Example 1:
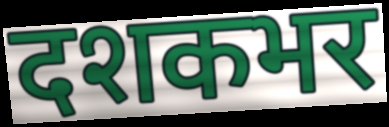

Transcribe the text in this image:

दशकभर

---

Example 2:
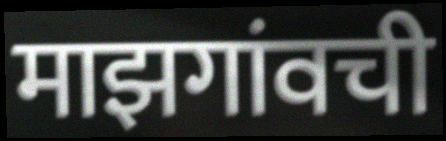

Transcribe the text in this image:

माझगांवची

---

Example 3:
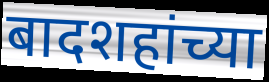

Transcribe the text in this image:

बादशहांच्या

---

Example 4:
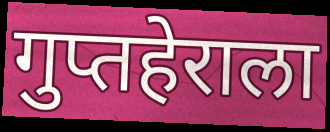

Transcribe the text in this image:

गुप्तहेराला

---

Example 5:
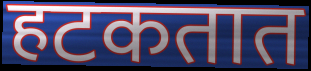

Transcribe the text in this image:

हटकतात